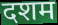
दशम